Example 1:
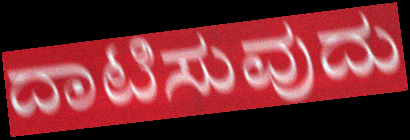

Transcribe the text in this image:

ದಾಟಿಸುವುದು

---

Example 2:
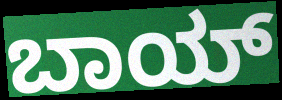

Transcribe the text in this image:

ಬಾಯ್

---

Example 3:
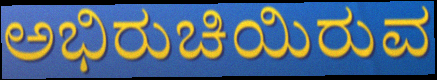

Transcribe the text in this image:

ಅಭಿರುಚಿಯಿರುವ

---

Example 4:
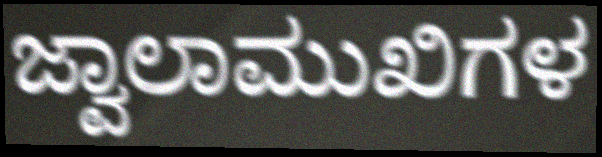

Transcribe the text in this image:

ಜ್ವಾಲಾಮುಖಿಗಳ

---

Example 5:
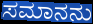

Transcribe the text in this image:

ಸಮಾನನು